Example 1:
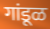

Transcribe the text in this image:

गांडूळ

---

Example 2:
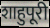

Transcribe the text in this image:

शाहुपूरी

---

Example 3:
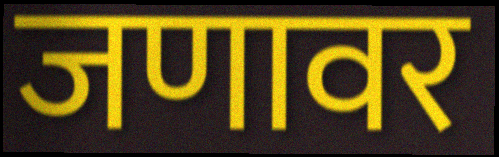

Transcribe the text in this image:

जणावर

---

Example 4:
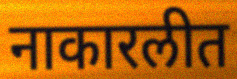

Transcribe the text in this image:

नाकारलीत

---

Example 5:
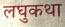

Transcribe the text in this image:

लघुकथा